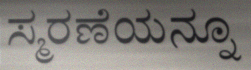
ಸ್ಮರಣೆಯನ್ನೂ